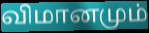
விமானமும்